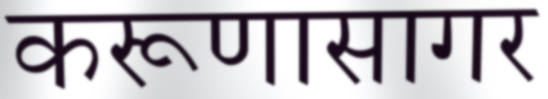
करूणासागर